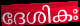
ദേശികഃ